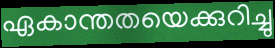
ഏകാന്തതയെക്കുറിച്ചു